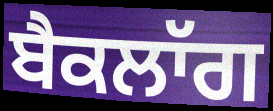
ਬੈਕਲਾੱਗ